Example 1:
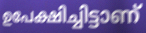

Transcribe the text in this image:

ഉപേക്ഷിച്ചിട്ടാണ്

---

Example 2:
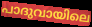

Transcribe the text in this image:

പാദുവായിലെ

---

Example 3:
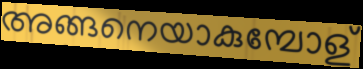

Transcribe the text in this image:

അങ്ങനെയാകുമ്പോള്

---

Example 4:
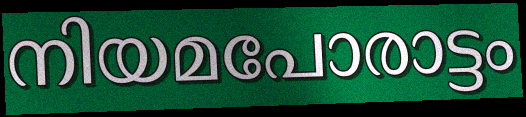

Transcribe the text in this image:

നിയമപോരാട്ടം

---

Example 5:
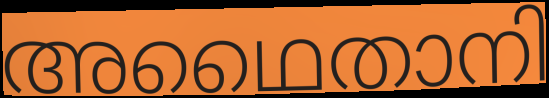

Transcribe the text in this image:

അഥൈതാനി